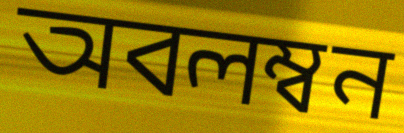
অবলম্বন